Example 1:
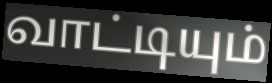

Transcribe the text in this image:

வாட்டியும்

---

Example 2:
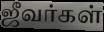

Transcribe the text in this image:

ஜீவர்கள்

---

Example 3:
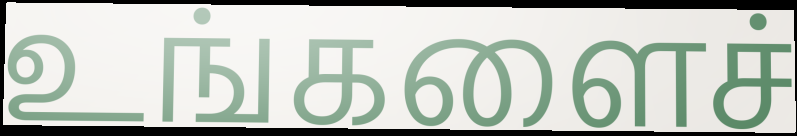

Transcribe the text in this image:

உங்களைச்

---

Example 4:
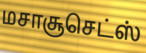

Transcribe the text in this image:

மசாசூசெட்ஸ்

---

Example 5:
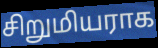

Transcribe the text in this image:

சிறுமியராக